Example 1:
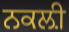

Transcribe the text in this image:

ਨਕਲ਼ੀ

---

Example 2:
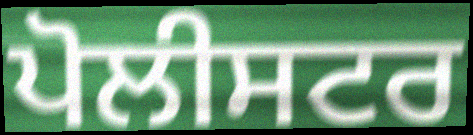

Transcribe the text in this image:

ਪੋਲੀਸਟਰ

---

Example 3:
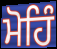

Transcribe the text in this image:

ਮੋਹਿੰ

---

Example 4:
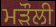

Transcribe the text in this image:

ਮੜੌਲੀ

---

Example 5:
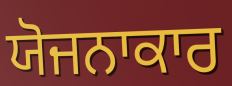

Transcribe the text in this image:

ਯੋਜਨਾਕਾਰ